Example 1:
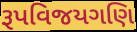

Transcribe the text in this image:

રૂપવિજયગણિ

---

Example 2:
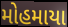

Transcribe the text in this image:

મોહમાયા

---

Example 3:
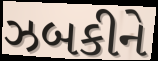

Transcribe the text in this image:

ઝબકીને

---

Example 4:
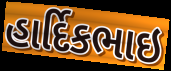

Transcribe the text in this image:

હાર્દિકભાઇ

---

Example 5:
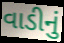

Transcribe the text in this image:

વાડીનું